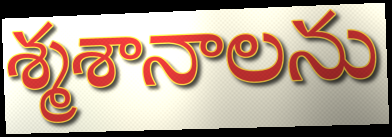
శ్మశానాలను